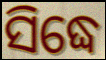
ସିଦ୍ଧେ